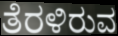
ತೆರಳಿರುವ